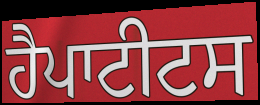
ਹੈਪਾਟੀਟਸ